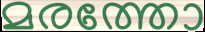
മരത്തോ